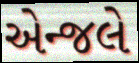
એન્જલે